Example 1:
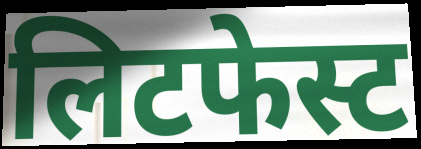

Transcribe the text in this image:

लिटफेस्ट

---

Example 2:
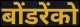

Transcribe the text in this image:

बोंडरेंको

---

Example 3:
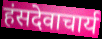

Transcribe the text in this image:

हंसदेवाचार्य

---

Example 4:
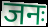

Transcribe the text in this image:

जनः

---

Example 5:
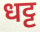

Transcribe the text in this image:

धट्ट